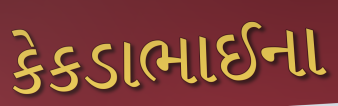
કેકડાભાઈના